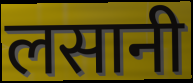
लसानी